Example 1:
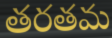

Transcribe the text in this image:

తరతమ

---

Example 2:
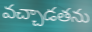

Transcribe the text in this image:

వచ్చాడతను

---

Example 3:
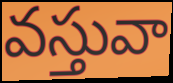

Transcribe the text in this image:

వస్తువా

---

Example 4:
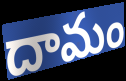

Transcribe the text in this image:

దామం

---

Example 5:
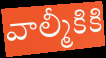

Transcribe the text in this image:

వాల్మీకికి